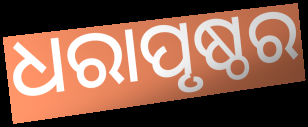
ଧରାପୃଷ୍ଠର